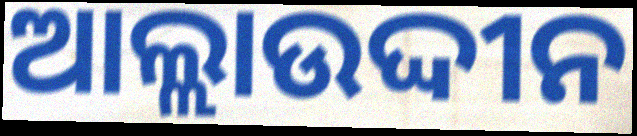
ଆଲ୍ଲାଉଦ୍ଦୀନ